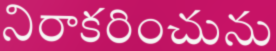
నిరాకరించును